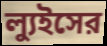
ল্যুইসের